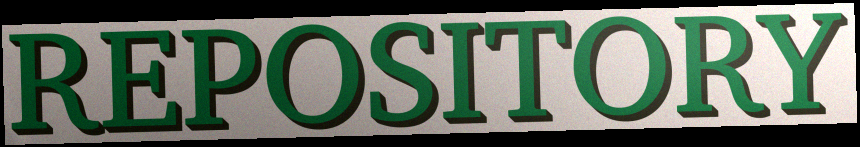
REPOSITORY